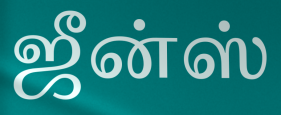
ஜீன்ஸ்